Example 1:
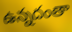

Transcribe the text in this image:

ఉన్నదంతా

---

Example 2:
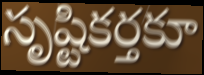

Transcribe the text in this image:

సృష్టికర్తకూ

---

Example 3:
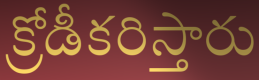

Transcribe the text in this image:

క్రోడీకరిస్తారు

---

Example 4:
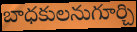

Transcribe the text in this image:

బాధకులనుగూర్చి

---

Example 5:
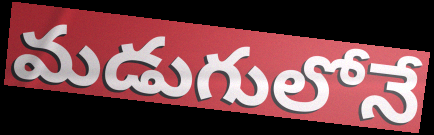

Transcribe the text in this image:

మడుగులోనే